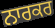
ਨਾਰਕਰ